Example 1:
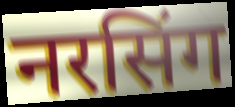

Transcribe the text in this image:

नरसिंग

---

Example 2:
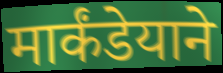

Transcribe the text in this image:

मार्कंडेयाने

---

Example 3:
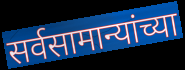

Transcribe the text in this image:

सर्वसामान्यांच्या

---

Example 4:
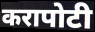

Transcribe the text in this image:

करापोटी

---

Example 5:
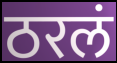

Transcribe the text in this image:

ठरलं